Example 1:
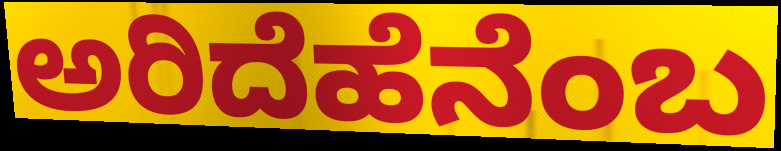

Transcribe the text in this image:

ಅರಿದೆಹೆನೆಂಬ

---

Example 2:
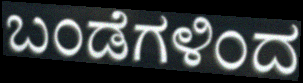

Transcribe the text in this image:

ಬಂಡೆಗಳಿಂದ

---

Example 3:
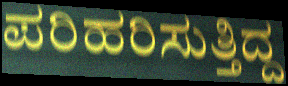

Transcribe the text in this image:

ಪರಿಹರಿಸುತ್ತಿದ್ದ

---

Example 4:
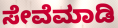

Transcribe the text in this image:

ಸೇವೆಮಾಡಿ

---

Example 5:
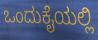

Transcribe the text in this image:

ಒಂದುಕೈಯಲ್ಲಿ